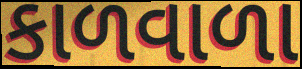
કાળવાળા